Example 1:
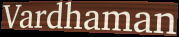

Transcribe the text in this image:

Vardhaman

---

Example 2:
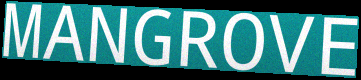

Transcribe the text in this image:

MANGROVE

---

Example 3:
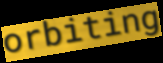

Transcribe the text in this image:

orbiting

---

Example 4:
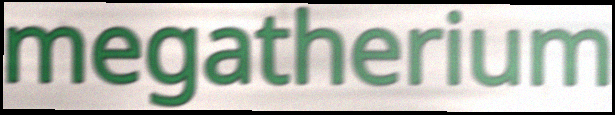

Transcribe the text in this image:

megatherium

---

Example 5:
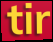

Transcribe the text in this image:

tir